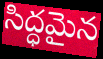
సిద్ధమైన